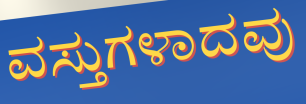
ವಸ್ತುಗಳಾದವು